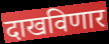
दाखविणार